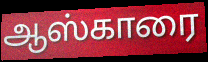
ஆஸ்காரை